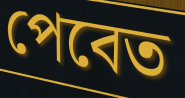
পেবেত